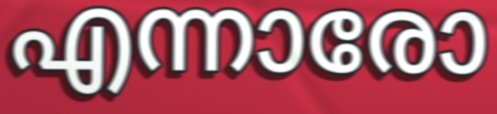
എന്നാരോ